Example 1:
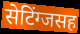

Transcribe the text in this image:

सेटिंग्जसह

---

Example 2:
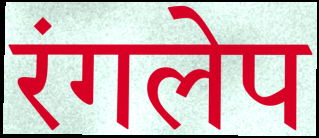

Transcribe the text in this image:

रंगलेप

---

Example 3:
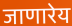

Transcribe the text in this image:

जाणारेय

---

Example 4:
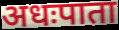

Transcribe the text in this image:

अधःपाता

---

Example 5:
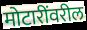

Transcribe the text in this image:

मोटारींवरील